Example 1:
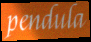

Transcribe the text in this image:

pendula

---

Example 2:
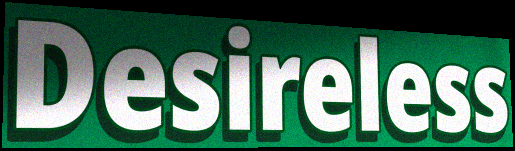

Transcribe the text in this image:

Desireless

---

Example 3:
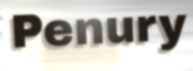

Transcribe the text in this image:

Penury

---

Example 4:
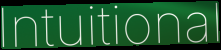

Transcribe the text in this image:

Intuitional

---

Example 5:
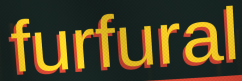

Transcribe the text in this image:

furfural